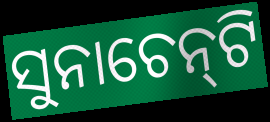
ସୁନାଚେନ୍‍ଟି